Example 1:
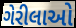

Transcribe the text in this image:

ગેરીલાઓ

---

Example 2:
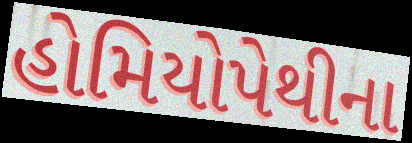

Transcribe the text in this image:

હોમિયોપેથીના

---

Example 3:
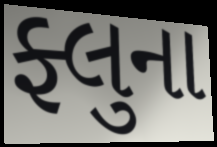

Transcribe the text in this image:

ફ્લુના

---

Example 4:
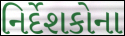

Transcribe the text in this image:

નિર્દેશકોના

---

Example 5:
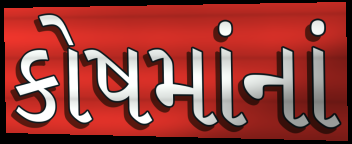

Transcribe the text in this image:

કોષમાંનાં